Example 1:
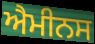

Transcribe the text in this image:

ਐਮੀਨਸ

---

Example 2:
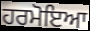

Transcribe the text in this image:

ਹਰਮੋਇਆ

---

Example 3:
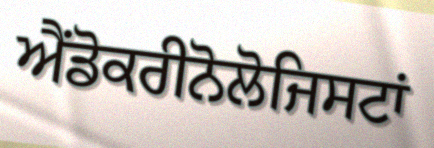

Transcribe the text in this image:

ਐਂਡੋਕਰੀਨੋਲੋਜਿਸਟਾਂ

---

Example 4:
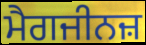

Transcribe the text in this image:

ਮੈਗਜੀਨਜ਼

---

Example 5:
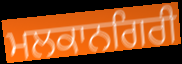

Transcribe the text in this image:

ਮਲਕਾਨਗਿਰੀ